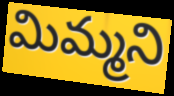
మిమ్మని